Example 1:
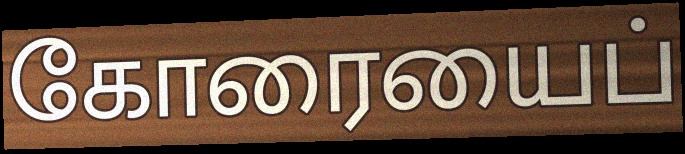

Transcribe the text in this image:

கோரையைப்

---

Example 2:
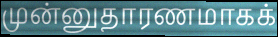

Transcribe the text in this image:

முன்னுதாரணமாகக்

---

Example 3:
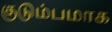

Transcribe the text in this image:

குடும்பமாக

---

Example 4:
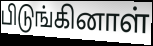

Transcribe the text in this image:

பிடுங்கினாள்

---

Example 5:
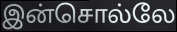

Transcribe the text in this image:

இன்சொல்லே